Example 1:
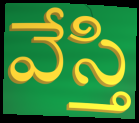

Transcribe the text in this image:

వేస్తి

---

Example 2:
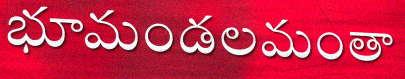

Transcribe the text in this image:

భూమండలమంతా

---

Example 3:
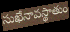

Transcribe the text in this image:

సుఖేనావస్థాతుం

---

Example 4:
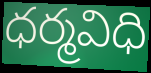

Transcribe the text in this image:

ధర్మవిధి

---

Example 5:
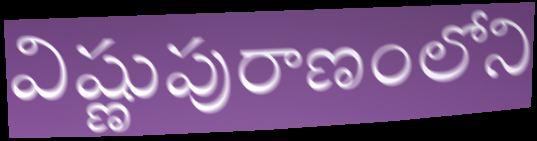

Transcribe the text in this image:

విష్ణుపురాణంలోని